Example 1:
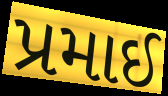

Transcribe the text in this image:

પ્રમાઈ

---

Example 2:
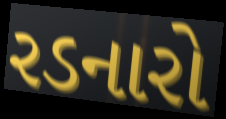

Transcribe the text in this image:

રડનારો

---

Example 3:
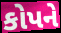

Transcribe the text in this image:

કોપને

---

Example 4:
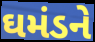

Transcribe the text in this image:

ઘમંડને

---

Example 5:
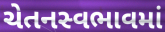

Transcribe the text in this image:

ચેતનસ્વભાવમાં